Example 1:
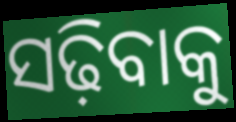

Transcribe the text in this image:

ସଢ଼ିବାକୁ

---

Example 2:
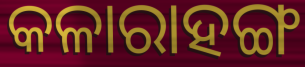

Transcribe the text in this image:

କଳାରାହଙ୍ଗ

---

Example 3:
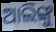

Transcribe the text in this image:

ଆଲିଙ୍କୁ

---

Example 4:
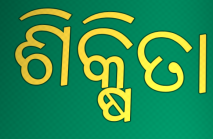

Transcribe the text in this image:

ଶିକ୍ଷିତା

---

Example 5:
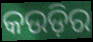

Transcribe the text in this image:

କଉଡ଼ିର